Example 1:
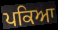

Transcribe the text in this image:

ਪਕਿਆ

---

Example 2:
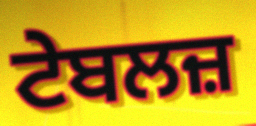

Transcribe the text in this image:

ਟੇਬਲਜ਼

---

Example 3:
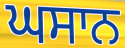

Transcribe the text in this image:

ਘਸਾਨ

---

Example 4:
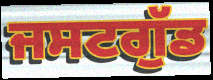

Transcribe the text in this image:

ਜਸਟਗੁੱਡ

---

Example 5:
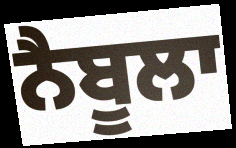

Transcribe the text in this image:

ਨੈਬੂਲਾ